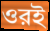
ওরই